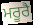
ਮਰੂਰੈ